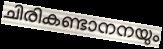
ചിരികണ്ടാനനയും